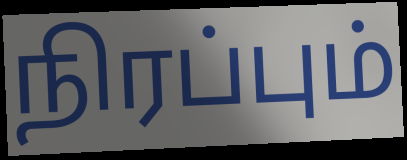
நிரப்பும்